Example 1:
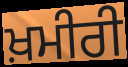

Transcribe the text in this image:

ਖ਼ਮੀਰੀ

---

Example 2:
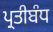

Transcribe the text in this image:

ਪ੍ਰਤੀਬੰਧ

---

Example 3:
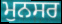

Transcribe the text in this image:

ਮੁਨਸਰ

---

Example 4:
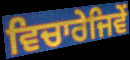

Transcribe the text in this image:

ਵਿਚਾਰੇਜਿਵੇਂ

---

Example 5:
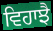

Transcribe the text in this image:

ਵਿਹਾਝੈ